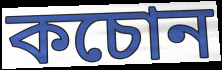
কচোন